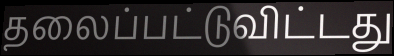
தலைப்பட்டுவிட்டது